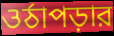
ওঠাপড়ার